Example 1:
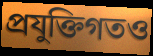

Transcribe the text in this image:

প্রযুক্তিগতও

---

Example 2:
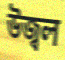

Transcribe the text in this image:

উজ্বল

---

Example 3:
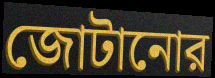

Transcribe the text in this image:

জোটানোর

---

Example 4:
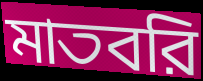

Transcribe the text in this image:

মাতবরি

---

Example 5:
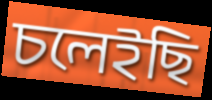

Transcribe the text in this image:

চলেইছি